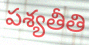
పశ్యతీతి